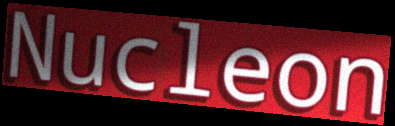
Nucleon